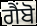
ਗੈਂਬੋ